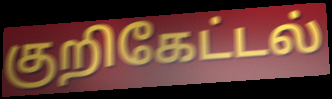
குறிகேட்டல்